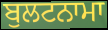
ਬੁਲਟਨਾਮਾ